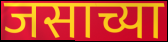
जसाच्या